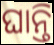
ଘାନ୍ତି